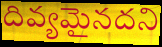
దివ్యమైనదని